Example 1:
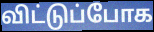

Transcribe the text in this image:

விட்டுப்போக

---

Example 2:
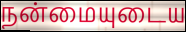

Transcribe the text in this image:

நன்மையுடைய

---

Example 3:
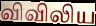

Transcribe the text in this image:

விவிலிய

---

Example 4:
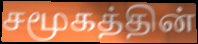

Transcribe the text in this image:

சமூகத்தின்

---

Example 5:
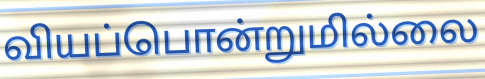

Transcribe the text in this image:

வியப்பொன்றுமில்லை